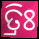
ତ୍ରିଃ